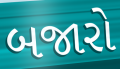
બજારો